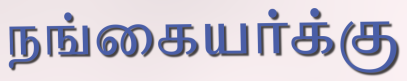
நங்கையர்க்கு